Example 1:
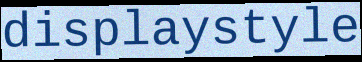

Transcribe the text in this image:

displaystyle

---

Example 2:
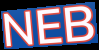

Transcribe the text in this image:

NEB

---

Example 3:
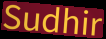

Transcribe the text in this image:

Sudhir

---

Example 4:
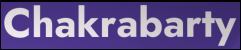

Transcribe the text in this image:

Chakrabarty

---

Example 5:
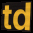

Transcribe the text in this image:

td